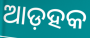
ଆଡ଼ହକ